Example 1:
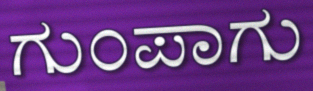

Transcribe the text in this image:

ಗುಂಪಾಗು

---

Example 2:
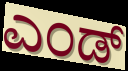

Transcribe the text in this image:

ಎಂಡ್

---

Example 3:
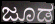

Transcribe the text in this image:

ಜೂಡ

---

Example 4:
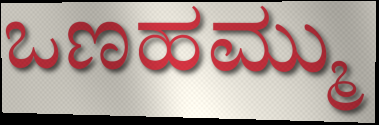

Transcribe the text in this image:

ಒಣಹಮ್ಮು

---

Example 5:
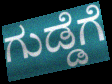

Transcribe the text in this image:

ಗುಡ್ಡೆಗೆ